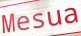
Mesua